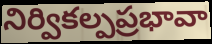
నిర్వికల్పప్రభావా